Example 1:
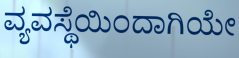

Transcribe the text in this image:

ವ್ಯವಸ್ಥೆಯಿಂದಾಗಿಯೇ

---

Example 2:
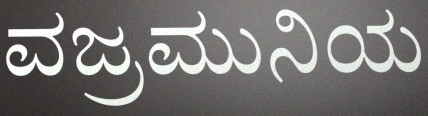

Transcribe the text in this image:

ವಜ್ರಮುನಿಯ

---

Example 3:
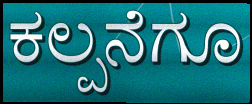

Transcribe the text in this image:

ಕಲ್ಪನೆಗೂ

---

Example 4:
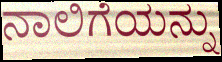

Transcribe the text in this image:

ನಾಲಿಗೆಯನ್ನು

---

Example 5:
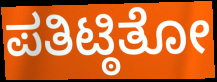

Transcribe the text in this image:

ಪತಿಟ್ಠಿತೋ